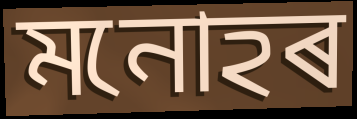
মনোহৰ